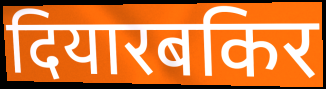
दियारबकिर